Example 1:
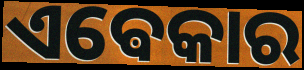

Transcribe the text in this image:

ଏଵେକାର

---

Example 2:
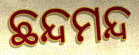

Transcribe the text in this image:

ଛନ୍ଦମନ୍ଦ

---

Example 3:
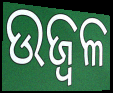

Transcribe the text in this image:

ଉଜ୍ବଳ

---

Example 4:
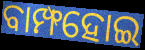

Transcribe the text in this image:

ବାମ୍ଫହୋଇ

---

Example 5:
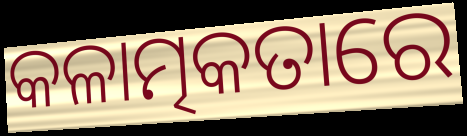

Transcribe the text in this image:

କଳାତ୍ମକତାରେ